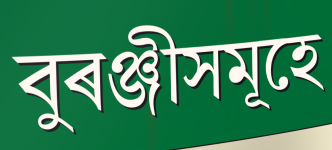
বুৰঞ্জীসমূহে